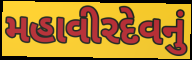
મહાવીરદેવનું